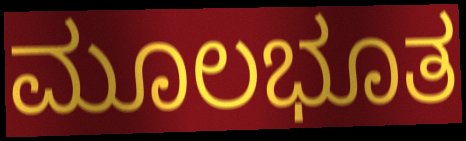
ಮೂಲಭೂತ